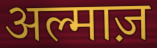
अल्माज़